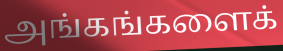
அங்கங்களைக்